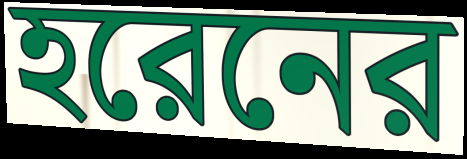
হরেনের